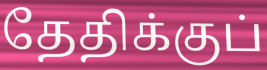
தேதிக்குப்